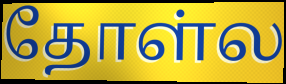
தோள்ல